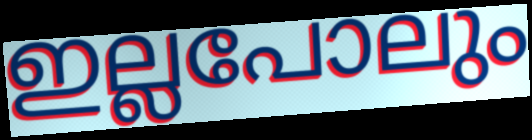
ഇല്ലപോലും